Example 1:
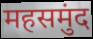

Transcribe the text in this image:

महसमुंद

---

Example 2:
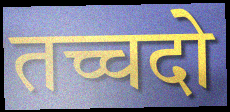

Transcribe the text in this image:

तच्चदो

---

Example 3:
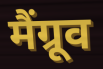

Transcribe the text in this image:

मैंग्रूव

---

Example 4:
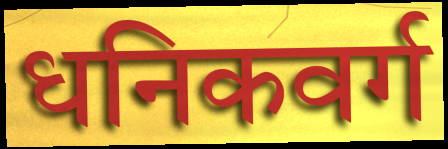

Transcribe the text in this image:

धनिकवर्ग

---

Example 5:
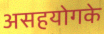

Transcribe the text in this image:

असहयोगके